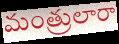
మంత్రులారా